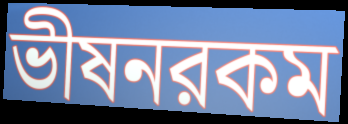
ভীষনরকম